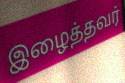
இழைத்தவர்